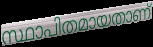
സ്ഥാപിതമായതാണ്